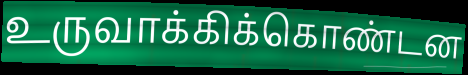
உருவாக்கிக்கொண்டன